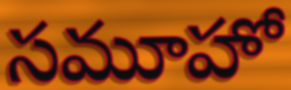
సమూహో